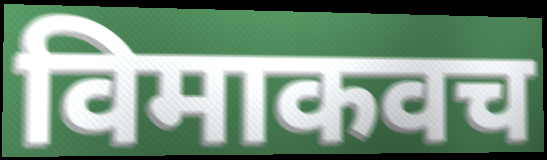
विमाकवच